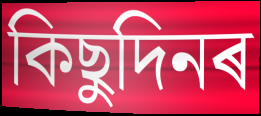
কিছুদিনৰ